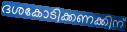
ദശകോടിക്കണക്കിന്